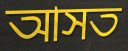
আসত